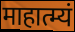
माहात्म्यं